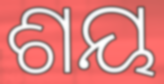
ଶୟ